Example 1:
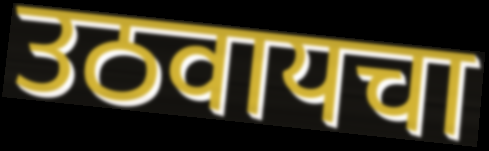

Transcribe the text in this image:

उठवायचा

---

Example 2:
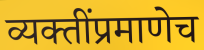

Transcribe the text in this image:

व्यक्तींप्रमाणेच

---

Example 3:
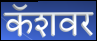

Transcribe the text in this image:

कॅशवर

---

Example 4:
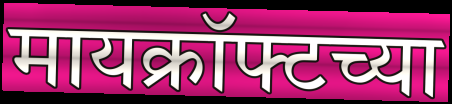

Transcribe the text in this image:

मायक्रॉफ्टच्या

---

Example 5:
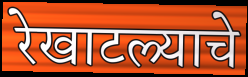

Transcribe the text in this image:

रेखाटल्याचे